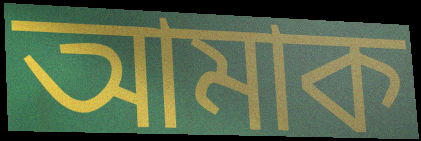
আমাক